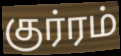
குர்ரம்